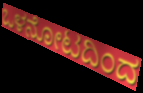
ಒಳನೋಟದಿಂದ